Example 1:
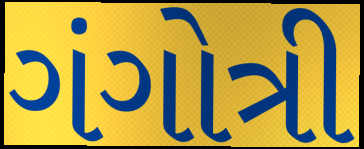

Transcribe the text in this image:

ગંગોત્રી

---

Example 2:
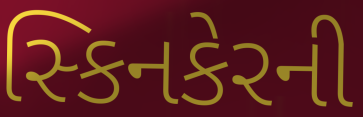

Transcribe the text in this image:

સ્કિનકેરની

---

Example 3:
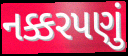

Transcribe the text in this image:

નક્કરપણું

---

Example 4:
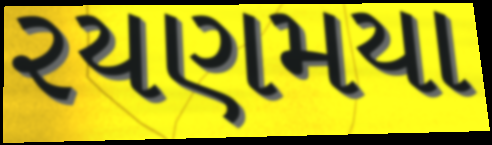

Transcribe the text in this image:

રયણમયા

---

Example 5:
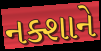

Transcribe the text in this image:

નક્શાને